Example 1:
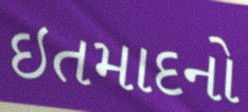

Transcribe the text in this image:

ઇતમાદનો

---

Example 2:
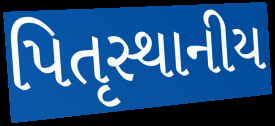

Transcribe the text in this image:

પિતૃસ્થાનીય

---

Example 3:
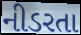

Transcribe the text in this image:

નીડરતા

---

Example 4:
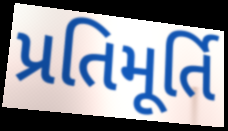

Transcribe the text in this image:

પ્રતિમૂર્તિ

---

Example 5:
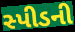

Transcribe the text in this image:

સ્પીડની